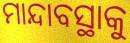
ମାନ୍ଦାବସ୍ଥାକୁ